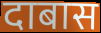
दाबास